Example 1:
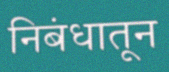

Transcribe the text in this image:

निबंधातून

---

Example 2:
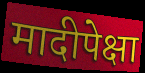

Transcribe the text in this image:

मादीपेक्षा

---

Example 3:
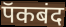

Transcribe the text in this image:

पॅकबंद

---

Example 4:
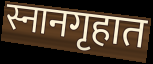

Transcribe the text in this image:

स्नानगृहात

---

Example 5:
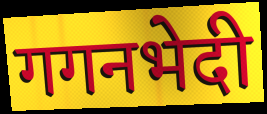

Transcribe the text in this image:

गगनभेदी